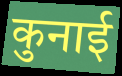
कुनाई